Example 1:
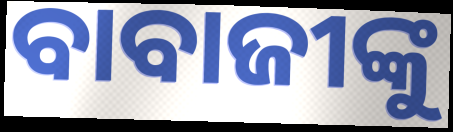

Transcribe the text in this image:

ବାବାଜୀଙ୍କୁ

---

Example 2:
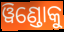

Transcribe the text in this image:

ୱିଣ୍ଡୋକୁ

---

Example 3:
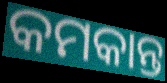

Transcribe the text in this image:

କମକାନ୍ତ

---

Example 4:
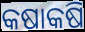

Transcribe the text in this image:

କଷାକଷି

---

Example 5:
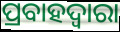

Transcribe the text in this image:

ପ୍ରବାହଦ୍ୱାରା